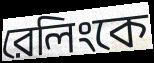
রেলিংকে